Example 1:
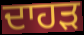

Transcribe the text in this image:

ਦਾਹੜ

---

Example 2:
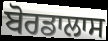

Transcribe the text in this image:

ਬੋਰਡਾਲਾਸ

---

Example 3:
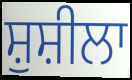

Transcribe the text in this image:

ਸ਼ੁਸ਼ੀਲਾ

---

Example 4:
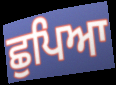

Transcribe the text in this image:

ਛੁਪਿਆ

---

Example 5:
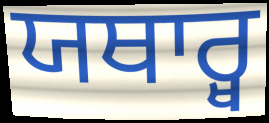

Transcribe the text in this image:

ਯਥਾਰ੍ਥ